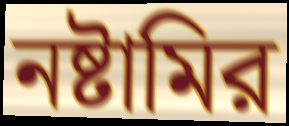
নষ্টামির